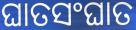
ଘାତସଂଘାତ